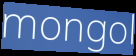
mongol